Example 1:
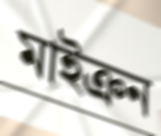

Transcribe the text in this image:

মাইক্রন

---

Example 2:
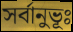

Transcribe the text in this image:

সর্বানুভূঃ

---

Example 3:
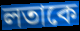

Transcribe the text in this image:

লতাকে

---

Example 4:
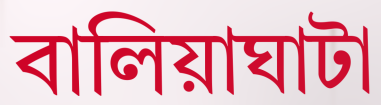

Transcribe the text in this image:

বালিয়াঘাটা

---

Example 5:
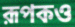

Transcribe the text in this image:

রূপকও